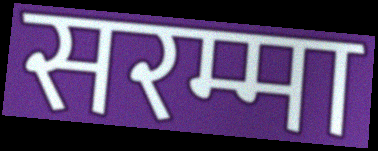
सरम्मा